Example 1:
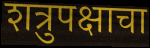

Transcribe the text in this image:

शत्रुपक्षाचा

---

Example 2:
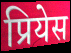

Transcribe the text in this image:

प्रियेस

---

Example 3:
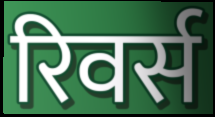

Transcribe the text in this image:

रिवर्स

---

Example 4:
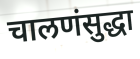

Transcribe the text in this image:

चालणंसुद्धा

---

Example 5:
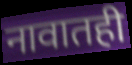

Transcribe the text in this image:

नावातही